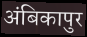
अंबिकापुर